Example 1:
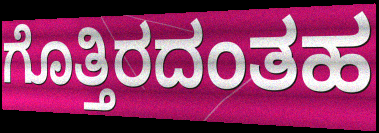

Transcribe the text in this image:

ಗೊತ್ತಿರದಂತಹ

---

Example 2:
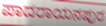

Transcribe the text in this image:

ಪಾದರಾಯನಪುರ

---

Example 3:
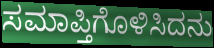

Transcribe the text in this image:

ಸಮಾಪ್ತಿಗೊಳಿಸಿದನು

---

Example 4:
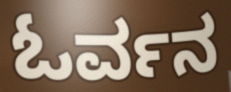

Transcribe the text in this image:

ಓರ್ವನ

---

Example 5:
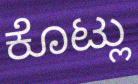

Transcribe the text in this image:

ಕೊಟ್ಲು